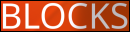
BLOCKS